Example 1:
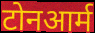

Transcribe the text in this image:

टोनआर्म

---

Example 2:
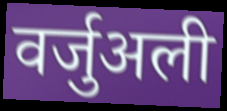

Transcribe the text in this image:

वर्जुअली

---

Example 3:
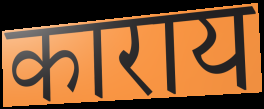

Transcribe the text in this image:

काराय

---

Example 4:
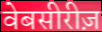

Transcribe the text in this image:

वेबसीरीज़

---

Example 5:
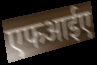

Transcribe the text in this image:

एफआईए